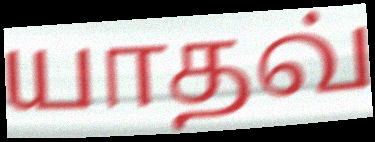
யாதவ்